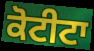
ਕੋਟੀਟਾ